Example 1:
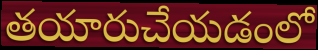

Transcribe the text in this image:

తయారుచేయడంలో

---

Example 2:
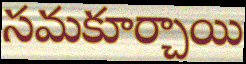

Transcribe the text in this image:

సమకూర్చాయి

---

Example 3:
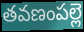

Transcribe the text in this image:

తవణంపల్లె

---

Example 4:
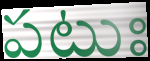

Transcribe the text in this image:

పటుః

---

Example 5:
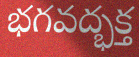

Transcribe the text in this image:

భగవద్భక్త